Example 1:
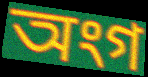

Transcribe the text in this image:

অংগ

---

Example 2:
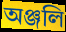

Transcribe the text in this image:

অঞ্জলি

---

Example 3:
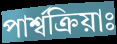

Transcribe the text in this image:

পাৰ্শ্বক্ৰিয়াঃ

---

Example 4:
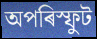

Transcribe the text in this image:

অপৰিস্ফুট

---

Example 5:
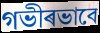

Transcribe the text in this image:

গভীৰভাবে